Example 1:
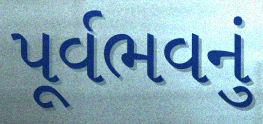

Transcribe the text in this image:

પૂર્વભવનું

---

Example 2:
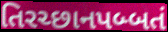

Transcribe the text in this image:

તિરચ્છાનપબ્બતં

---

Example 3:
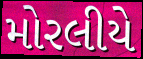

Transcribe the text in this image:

મોરલીયે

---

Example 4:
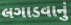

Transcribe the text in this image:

લગાડવાનું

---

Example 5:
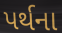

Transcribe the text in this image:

પર્થના